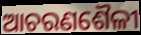
ଆଚରଣଶୈଳୀ